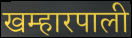
खम्हारपाली